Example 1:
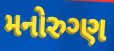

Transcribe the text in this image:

મનોરુગ્ણ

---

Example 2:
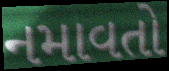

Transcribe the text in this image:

નમાવતો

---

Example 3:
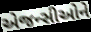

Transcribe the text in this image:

એજન્સીઓને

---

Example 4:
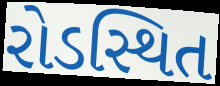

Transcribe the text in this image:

રોડસ્થિત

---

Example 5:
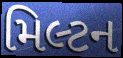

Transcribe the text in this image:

મિલ્ટન